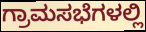
ಗ್ರಾಮಸಭೆಗಳಲ್ಲಿ